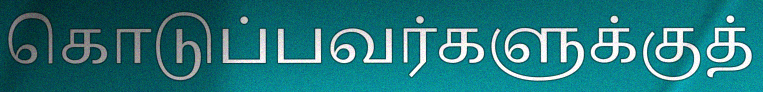
கொடுப்பவர்களுக்குத்